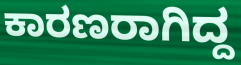
ಕಾರಣರಾಗಿದ್ದ